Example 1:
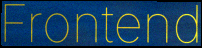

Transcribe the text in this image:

Frontend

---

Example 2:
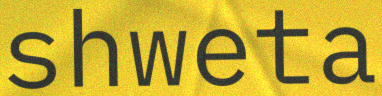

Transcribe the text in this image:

shweta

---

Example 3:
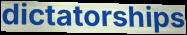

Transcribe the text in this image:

dictatorships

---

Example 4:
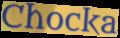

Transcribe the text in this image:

Chocka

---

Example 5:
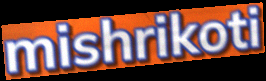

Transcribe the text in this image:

mishrikoti